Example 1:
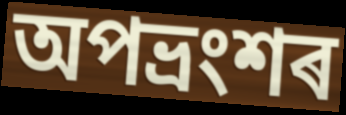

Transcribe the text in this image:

অপভ্ৰংশৰ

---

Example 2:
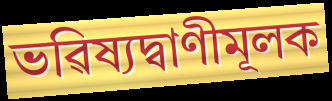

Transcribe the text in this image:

ভৱিষ্যদ্বাণীমূলক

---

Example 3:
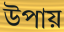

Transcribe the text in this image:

উপায়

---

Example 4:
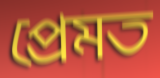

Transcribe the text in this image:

প্ৰেমত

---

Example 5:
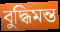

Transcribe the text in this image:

বুদ্ধিমন্ত